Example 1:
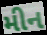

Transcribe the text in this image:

મીન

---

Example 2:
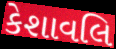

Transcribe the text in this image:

કેશાવલિ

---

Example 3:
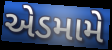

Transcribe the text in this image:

એડમામે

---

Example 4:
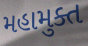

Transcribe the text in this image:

મહામુક્ત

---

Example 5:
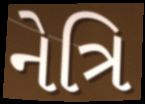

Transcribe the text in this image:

નેત્રિ